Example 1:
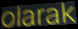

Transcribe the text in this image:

olarak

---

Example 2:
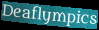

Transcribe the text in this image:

Deaflympics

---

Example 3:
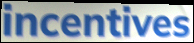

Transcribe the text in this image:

incentives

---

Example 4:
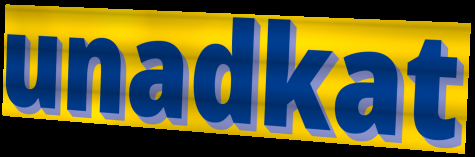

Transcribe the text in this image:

unadkat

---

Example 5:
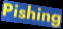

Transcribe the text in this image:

Pishing